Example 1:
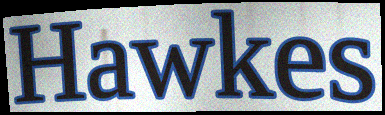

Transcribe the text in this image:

Hawkes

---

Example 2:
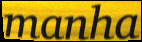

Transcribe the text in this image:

manha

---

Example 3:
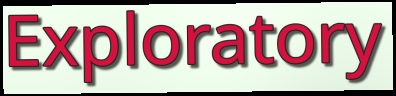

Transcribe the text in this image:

Exploratory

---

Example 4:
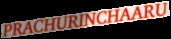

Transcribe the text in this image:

PRACHURINCHAARU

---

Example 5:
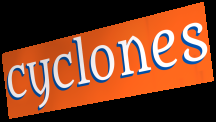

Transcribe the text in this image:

cyclones